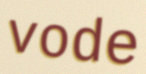
vode